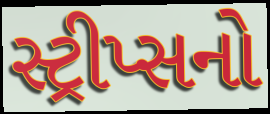
સ્ટ્રીપ્સનો